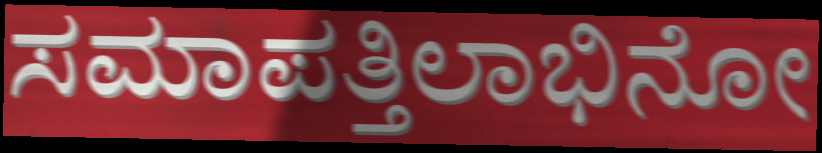
ಸಮಾಪತ್ತಿಲಾಭಿನೋ